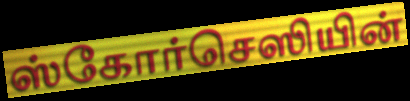
ஸ்கோர்செஸியின்